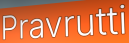
Pravrutti